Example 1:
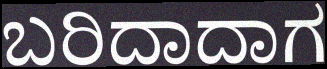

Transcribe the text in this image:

ಬರಿದಾದಾಗ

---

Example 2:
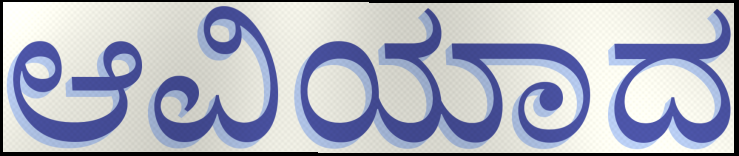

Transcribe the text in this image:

ಆವಿಯಾದ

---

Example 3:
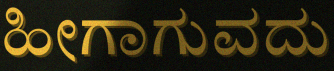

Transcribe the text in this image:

ಹೀಗಾಗುವದು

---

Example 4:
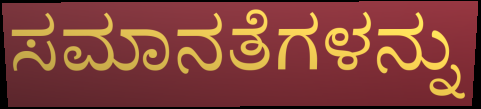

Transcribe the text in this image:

ಸಮಾನತೆಗಳನ್ನು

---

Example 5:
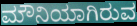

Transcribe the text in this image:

ಮೌನಿಯಾಗಿರುವ